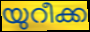
യുറീക്ക